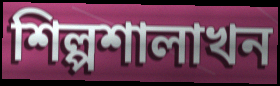
শিল্পশালাখন